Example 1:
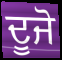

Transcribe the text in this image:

ਦੂਜੋ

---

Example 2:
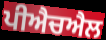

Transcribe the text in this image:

ਪੀਐਚਐਲ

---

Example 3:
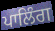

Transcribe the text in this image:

ਪਾਲਿੰਗ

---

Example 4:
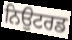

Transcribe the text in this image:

ਨਿਉਟਰਡ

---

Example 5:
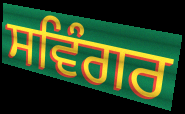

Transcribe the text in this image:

ਸਵਿੰਗਰ